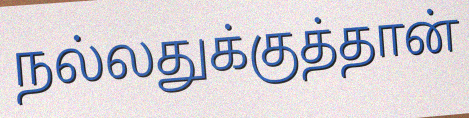
நல்லதுக்குத்தான்